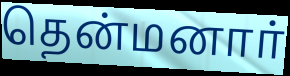
தென்மனார்